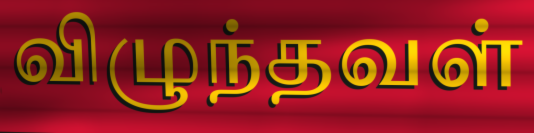
விழுந்தவள்